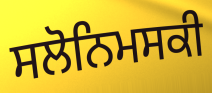
ਸਲੋਨਿਮਸਕੀ